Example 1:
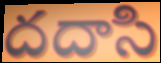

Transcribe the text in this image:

దదాసి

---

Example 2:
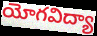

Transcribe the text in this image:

యోగవిద్యా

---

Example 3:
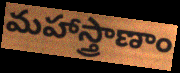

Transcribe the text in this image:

మహాస్త్రాణాం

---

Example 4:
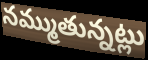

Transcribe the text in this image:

నమ్ముతున్నట్లు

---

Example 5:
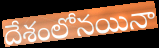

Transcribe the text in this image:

దేశంలోనయినా